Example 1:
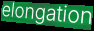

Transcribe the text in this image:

elongation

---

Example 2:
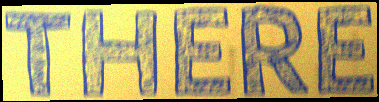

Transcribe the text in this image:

THERE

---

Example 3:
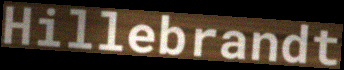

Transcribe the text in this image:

Hillebrandt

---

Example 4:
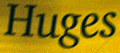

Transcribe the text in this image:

Huges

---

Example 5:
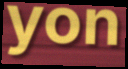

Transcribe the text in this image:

yon